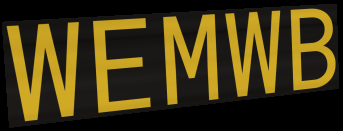
WEMWB